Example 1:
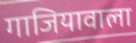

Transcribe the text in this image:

गाजियावाला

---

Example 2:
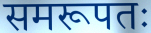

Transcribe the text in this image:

समरूपतः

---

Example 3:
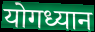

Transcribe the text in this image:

योगध्यान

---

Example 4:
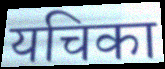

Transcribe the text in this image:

यचिका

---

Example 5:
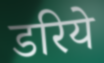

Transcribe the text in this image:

डरिये